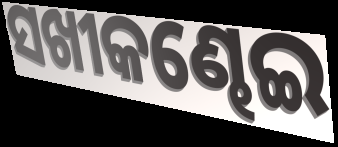
ସଖୀକଣ୍ଢେଇ